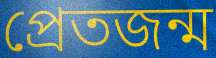
প্রেতজন্ম